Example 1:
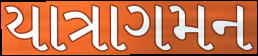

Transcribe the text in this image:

યાત્રાગમન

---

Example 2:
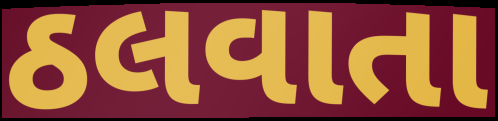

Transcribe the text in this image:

ઠલવાતા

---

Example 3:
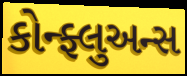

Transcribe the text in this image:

કોન્ફ્લુઅન્સ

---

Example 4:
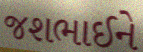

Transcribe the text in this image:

જશભાઈને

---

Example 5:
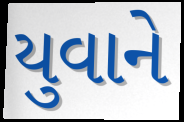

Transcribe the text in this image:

યુવાને